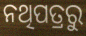
ନଥିପତ୍ରରୁ